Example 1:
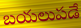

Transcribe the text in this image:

బయలుపడే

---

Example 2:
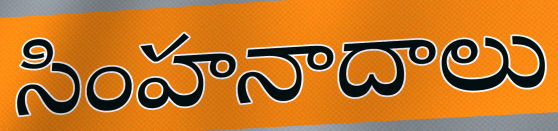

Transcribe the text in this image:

సింహనాదాలు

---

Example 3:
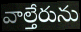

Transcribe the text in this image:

వాల్తేరును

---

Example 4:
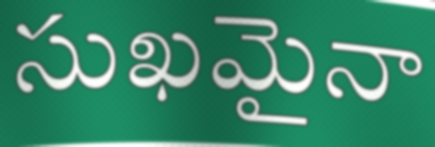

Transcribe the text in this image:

సుఖమైనా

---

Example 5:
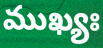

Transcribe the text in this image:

ముఖ్యః